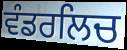
ਵੰਡਰਲਿਚ